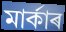
মাৰ্কাৰ